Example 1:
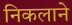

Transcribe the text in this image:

निकलाने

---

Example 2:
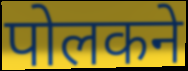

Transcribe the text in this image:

पोलकने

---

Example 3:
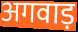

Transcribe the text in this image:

अगवाड़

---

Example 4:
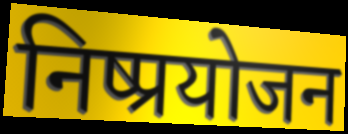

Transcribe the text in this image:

निष्प्रयोजन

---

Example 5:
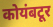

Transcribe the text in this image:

कोयंबटूर